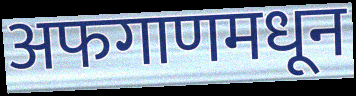
अफगाणमधून